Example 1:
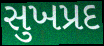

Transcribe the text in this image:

સુખપ્રદ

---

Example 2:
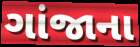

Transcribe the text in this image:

ગાંજાના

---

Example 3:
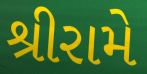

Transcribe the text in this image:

શ્રીરામે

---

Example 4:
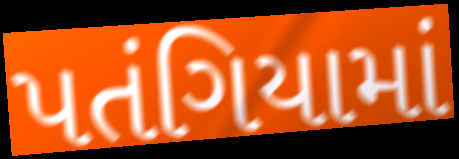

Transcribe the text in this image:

પતંગિયામાં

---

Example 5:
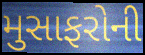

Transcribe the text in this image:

મુસાફરોની